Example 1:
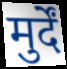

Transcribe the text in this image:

मुर्दें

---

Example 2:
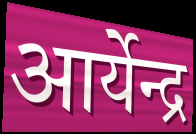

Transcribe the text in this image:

आर्येन्द्र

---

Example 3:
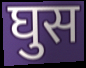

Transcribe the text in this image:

घुस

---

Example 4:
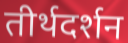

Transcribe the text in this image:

तीर्थदर्शन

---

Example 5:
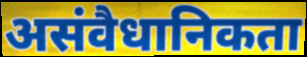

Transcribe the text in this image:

असंवैधानिकता